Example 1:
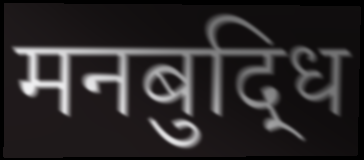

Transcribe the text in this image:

मनबुद्धि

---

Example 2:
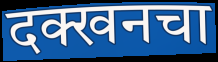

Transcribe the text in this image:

दक्खनचा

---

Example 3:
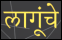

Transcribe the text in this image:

लागूंचे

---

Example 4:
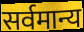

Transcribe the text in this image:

सर्वमान्य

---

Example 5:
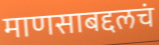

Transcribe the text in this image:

माणसाबद्दलचं